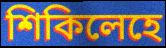
শিকিলেহে